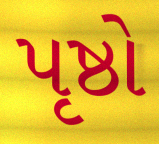
પૃષ્ઠો